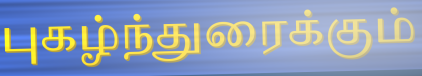
புகழ்ந்துரைக்கும்